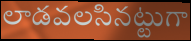
లాడవలసినట్టుగా